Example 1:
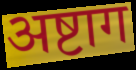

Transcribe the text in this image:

अष्टाग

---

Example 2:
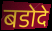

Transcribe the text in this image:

बडोदे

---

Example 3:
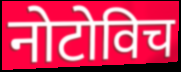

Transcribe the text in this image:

नोटोविच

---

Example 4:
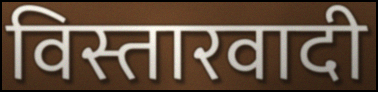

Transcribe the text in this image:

विस्तारवादी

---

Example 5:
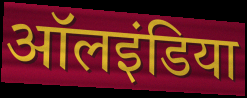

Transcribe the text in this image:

ऑलइंडिया